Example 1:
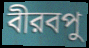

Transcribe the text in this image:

বীরবপু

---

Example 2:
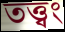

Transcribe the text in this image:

তত্ত্বং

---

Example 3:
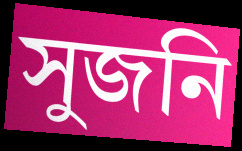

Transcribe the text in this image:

সুজনি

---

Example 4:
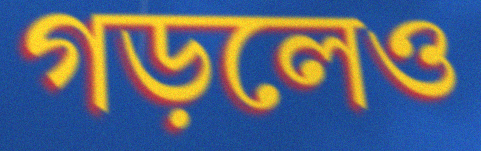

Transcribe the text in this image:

গড়লেও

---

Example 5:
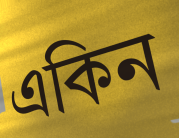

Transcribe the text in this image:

একিন